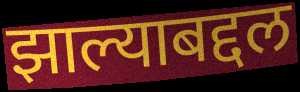
झाल्याबद्दल